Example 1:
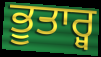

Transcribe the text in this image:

ਭੂਤਾਰ੍ਥ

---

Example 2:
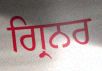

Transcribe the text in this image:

ਗ੍ਰਿਨਰ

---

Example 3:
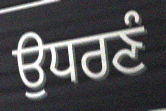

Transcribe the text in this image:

ਉਧਰਣੰ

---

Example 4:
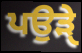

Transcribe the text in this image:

ਪਉੜੑੇ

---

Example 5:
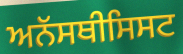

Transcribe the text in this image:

ਅਨੱਸਥੀਸਿਸਟ